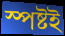
স্পষ্টই